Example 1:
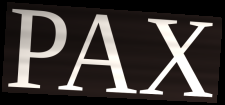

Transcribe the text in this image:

PAX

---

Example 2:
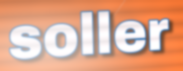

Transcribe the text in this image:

soller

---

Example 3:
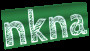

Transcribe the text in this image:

nkna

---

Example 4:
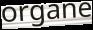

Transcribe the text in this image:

organe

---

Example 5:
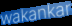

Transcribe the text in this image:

wakankar